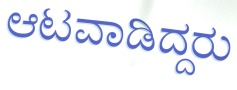
ಆಟವಾಡಿದ್ದರು